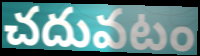
చదువటం